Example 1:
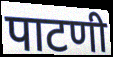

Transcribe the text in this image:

पाटणी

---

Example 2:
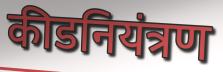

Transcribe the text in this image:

कीडनियंत्रण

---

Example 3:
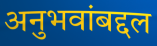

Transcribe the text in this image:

अनुभवांबद्दल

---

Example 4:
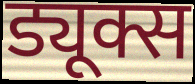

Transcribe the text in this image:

ड्यूक्स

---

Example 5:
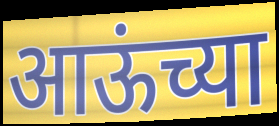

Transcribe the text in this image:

आऊंच्या